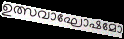
ഉത്സവാഘോഷമോ